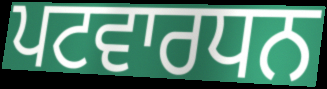
ਪਟਵਾਰਧਨ